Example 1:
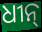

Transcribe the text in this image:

ଧୀନ୍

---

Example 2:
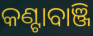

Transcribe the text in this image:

କଣ୍ଟାବାଞ୍ଜି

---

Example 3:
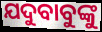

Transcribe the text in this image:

ଯଦୁବାବୁଙ୍କୁ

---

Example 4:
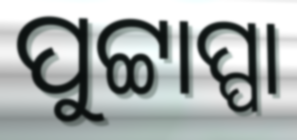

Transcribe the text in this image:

ପୁଟ୍ଟାପ୍ପା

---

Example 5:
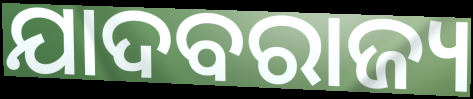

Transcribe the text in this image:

ଯାଦବରାଜ୍ୟ